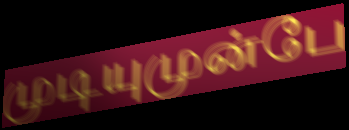
முடியுமுன்பே